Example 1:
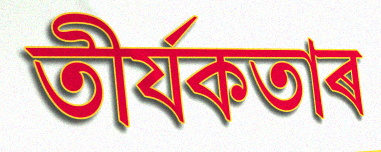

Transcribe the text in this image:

তীৰ্যকতাৰ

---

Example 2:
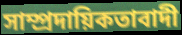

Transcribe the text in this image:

সাম্প্ৰদায়িকতাবাদী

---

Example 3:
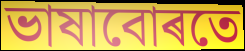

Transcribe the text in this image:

ভাষাবোৰতে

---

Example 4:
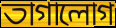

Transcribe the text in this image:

তাগালোগ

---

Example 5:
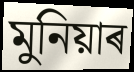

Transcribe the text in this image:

মুনিয়াৰ